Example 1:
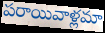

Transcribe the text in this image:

పరాయివాళ్లమా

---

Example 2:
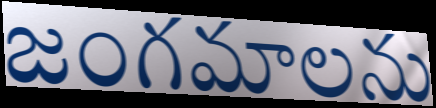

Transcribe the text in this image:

జంగమాలను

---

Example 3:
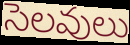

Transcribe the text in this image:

సెలవులు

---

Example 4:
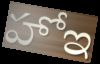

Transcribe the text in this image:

హోఇ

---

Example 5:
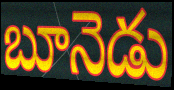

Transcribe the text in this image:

బూనెడు